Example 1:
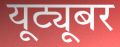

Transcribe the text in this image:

यूट्यूबर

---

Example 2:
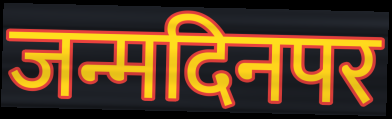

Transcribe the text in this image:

जन्मदिनपर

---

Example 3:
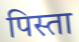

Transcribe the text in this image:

पिस्ता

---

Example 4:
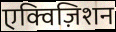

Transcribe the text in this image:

एक्विज़िशन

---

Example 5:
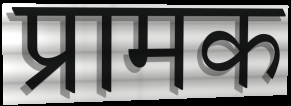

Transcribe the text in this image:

प्रामक